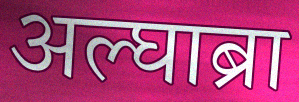
अल्घाब्रा